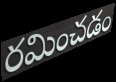
రమించడం